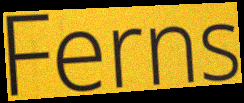
Ferns